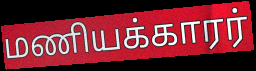
மணியக்காரர்